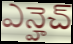
ఎన్హెచ్